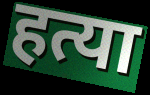
हत्या